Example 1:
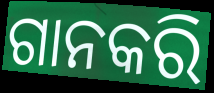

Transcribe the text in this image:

ଗାନକରି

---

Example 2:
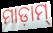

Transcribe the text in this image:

ମାଡ଼ାମ୍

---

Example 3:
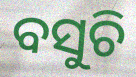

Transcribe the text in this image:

ବସୁଚି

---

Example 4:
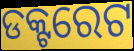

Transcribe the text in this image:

ଡକ୍ଟରେଟ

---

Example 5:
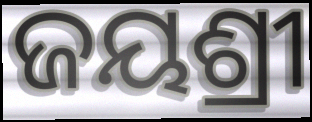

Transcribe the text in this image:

ଜୟଶ୍ରୀ